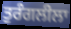
ਤੁਰੰਗਲੀਲਾ